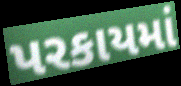
પરકાયમાં